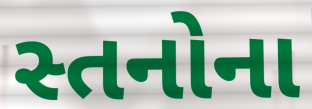
સ્તનોના